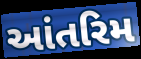
આંતરિમ